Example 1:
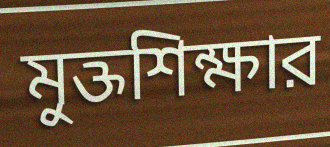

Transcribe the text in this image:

মুক্তশিক্ষার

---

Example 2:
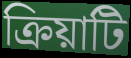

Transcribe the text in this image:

ক্রিয়াটি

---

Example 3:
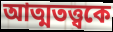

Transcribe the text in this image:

আত্মতত্ত্বকে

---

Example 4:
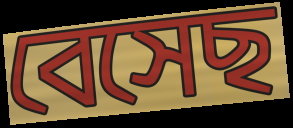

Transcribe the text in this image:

বেসেছ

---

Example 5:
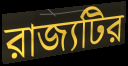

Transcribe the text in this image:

রাজ্যটির